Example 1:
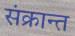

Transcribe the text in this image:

संक्रान्त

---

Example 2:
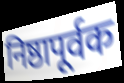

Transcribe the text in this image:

निष्ठापूर्वक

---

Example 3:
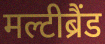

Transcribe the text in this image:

मल्टीब्रैंड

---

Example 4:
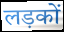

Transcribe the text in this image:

लड़कों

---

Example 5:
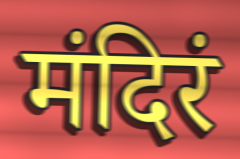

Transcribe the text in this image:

मंदिरं